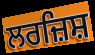
ਲਰਜ਼ਿਸ਼